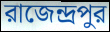
রাজেন্দ্রপুর